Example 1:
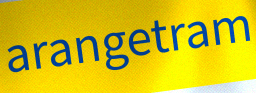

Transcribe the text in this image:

arangetram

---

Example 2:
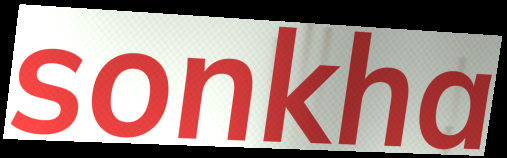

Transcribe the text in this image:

sonkha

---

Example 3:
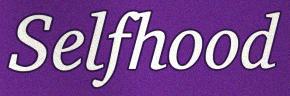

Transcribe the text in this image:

Selfhood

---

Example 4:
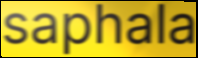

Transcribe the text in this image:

saphala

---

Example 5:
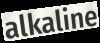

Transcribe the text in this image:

alkaline